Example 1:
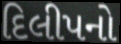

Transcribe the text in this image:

દિલીપનો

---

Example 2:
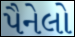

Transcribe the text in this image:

પૈનેલો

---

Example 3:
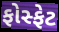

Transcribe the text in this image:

ફોસ્ફેટ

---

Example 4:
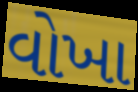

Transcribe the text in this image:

વોખા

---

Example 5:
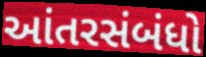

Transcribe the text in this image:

આંતરસંબંધો